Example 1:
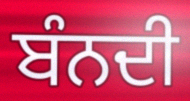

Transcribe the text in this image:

ਬੰਨਦੀ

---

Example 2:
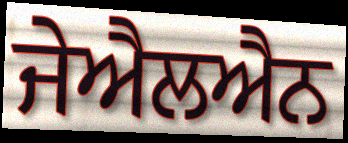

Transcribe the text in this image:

ਜੇਐਲਐਨ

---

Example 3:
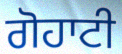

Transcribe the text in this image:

ਗੋਹਾਟੀ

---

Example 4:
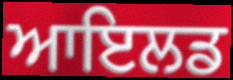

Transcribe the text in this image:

ਆਇਲਡ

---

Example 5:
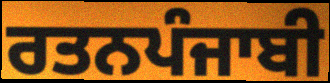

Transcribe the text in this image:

ਰਤਨਪੰਜਾਬੀ